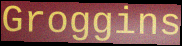
Groggins